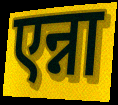
एन्ना